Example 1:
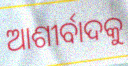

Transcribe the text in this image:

ଆଶୀର୍ବାଦକୁ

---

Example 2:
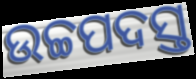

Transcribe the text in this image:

ଉଚ୍ଚପଦସ୍ତ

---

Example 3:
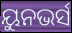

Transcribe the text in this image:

ୟୁନଭର୍ସ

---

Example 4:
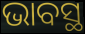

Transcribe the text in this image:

ଭାବସ୍ଥ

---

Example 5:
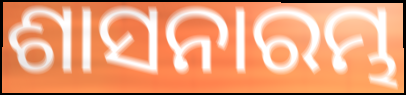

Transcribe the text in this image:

ଶାସନାରମ୍ଭ